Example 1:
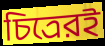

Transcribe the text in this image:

চিত্রেরই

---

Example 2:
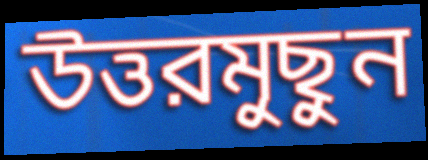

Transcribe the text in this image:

উত্তরমুছুন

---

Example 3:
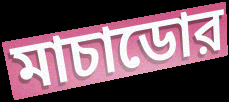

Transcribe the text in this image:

মাচাডোর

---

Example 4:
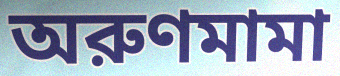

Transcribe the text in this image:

অরুণমামা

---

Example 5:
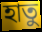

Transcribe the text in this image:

হাতু